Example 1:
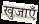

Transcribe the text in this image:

खुजाएँ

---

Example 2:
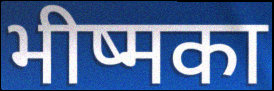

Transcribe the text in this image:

भीष्मका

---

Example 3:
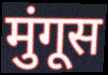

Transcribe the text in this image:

मुंगूस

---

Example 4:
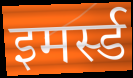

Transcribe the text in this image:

इमर्स्ड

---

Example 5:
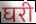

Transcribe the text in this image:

घरी